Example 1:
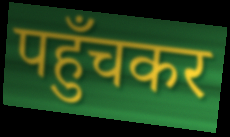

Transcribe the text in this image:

पहुँचकर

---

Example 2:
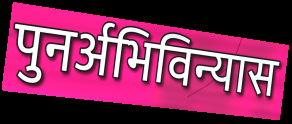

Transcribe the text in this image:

पुनर्अभिविन्यास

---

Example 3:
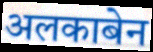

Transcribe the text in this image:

अलकाबेन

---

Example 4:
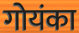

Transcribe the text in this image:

गोयंका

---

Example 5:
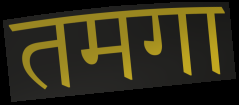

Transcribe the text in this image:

तमगा